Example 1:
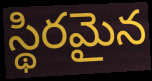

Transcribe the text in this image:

స్థిరమైన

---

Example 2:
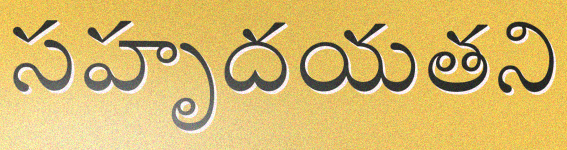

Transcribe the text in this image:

సహృదయతని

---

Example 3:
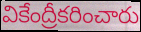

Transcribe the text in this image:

వికేంద్రీకరించారు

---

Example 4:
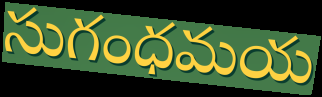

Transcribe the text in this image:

సుగంధమయ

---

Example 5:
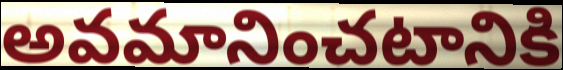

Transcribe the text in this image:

అవమానించటానికి